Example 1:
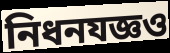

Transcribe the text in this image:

নিধনযজ্ঞও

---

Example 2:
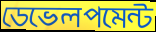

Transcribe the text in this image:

ডেভেলপমেন্ট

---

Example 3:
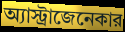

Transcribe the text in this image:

অ্যাস্ট্রাজেনেকার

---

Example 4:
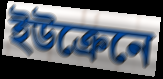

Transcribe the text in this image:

ইউক্রেনে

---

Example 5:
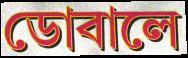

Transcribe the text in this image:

ডোবালে